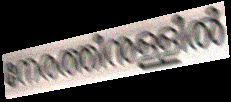
നേരത്തിനുള്ളിൽ